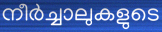
നീർച്ചാലുകളുടെ